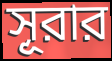
সূরার